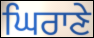
ਘਿਰਾਣੇ